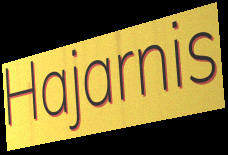
Hajarnis